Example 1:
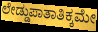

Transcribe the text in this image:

ಲೇಡ್ಡುಪಾತಾತಿಕ್ಕಮೇ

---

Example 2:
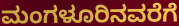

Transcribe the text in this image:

ಮಂಗಳೂರಿನವರೆಗೆ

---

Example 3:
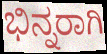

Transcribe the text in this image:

ಭಿನ್ನರಾಗಿ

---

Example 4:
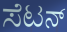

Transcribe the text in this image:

ಸೆಟನ್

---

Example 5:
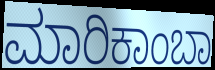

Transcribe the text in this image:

ಮಾರಿಕಾಂಬಾ